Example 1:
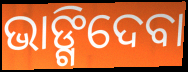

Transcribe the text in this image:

ଭାଙ୍ଗିଦେବା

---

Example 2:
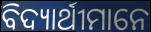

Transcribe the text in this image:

ବିଦ୍ୟାର୍ଥୀମାନେ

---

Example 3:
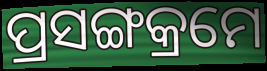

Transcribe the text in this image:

ପ୍ରସଙ୍ଗକ୍ରମେ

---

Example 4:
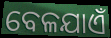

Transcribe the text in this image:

ବେଳଯାଏଁ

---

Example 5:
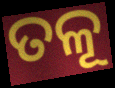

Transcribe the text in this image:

ତଳୂ